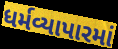
ધર્મવ્યાપારમાં